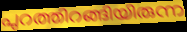
പുറത്തിറങ്ങിയിരുന്ന